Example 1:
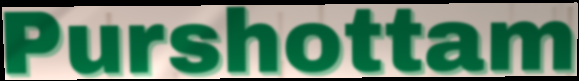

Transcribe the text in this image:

Purshottam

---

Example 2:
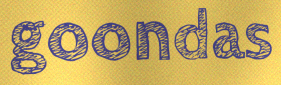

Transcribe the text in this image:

goondas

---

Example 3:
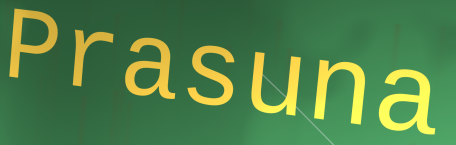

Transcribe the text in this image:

Prasuna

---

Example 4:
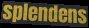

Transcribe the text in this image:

splendens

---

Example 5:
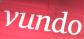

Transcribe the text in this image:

vundo